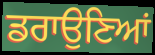
ਡਰਾਉਣਿਆਂ